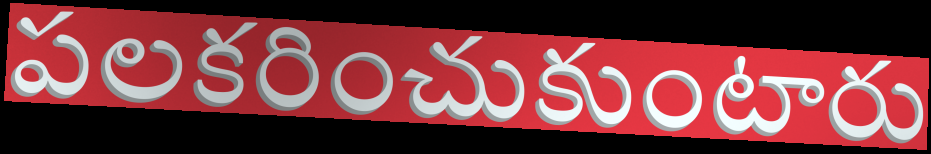
పలకరించుకుంటారు